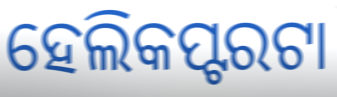
ହେଲିକପ୍ଟରଟା